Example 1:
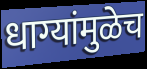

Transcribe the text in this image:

धाग्यांमुळेच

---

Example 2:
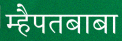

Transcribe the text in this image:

म्हैपतबाबा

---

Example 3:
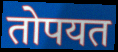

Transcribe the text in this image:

तोपयत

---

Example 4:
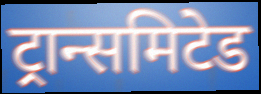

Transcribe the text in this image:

ट्रान्समिटेड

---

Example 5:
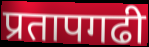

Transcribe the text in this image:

प्रतापगढी